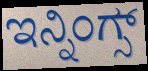
ಇನ್ನಿಂಗ್ಸ್